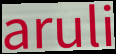
aruli